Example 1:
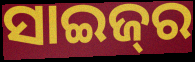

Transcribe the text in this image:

ସାଇଜ୍‌ର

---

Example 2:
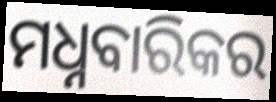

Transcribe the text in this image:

ମଧ୍ନବାରିକର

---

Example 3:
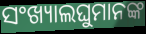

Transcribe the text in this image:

ସଂଖ୍ୟାଲଘୁମାନଙ୍କ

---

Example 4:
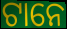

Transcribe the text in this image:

ଟାନେ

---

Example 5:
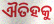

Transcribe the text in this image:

ଐତିହକୁ